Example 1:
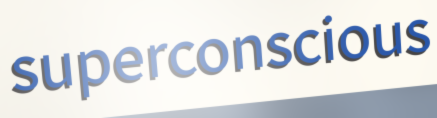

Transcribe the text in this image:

superconscious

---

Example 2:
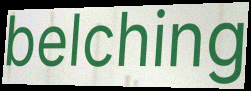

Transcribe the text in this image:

belching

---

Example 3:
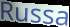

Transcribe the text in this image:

Russa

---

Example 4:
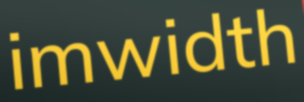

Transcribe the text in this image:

imwidth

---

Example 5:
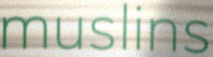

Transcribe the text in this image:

muslins